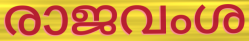
രാജവംശ